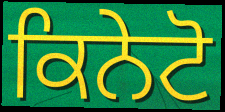
ਕਿਨੇਟੋ